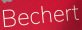
Bechert